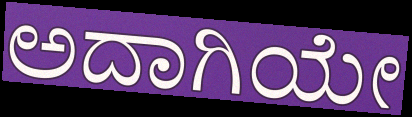
ಅದಾಗಿಯೇ